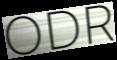
ODR